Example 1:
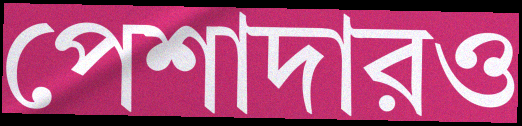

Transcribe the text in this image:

পেশাদারও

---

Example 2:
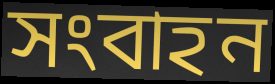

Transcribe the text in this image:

সংবাহন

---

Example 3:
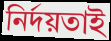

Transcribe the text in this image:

নির্দয়তাই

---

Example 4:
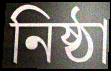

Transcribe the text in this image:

নিষ্ঠা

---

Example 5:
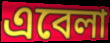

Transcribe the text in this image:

এবেলা